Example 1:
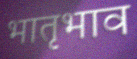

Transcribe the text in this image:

भातृभाव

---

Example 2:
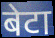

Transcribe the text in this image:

बेटा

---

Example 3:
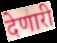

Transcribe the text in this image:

देणारी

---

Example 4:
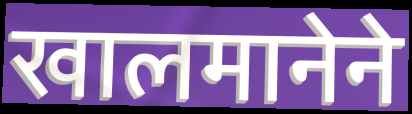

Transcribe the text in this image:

खालमानेने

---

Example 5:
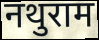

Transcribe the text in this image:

नथुराम